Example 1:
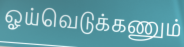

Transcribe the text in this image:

ஓய்வெடுக்கணும்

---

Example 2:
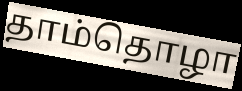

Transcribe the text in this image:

தாம்தொழா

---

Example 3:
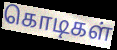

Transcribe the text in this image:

கொடிகள்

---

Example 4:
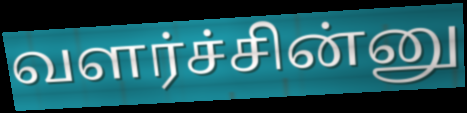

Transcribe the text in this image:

வளர்ச்சின்னு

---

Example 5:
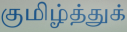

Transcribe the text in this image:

குமிழ்த்துக்